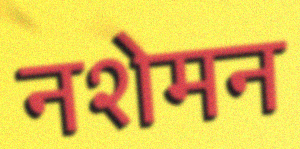
नशेमन